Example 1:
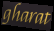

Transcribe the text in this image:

gharat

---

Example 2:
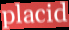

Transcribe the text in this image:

placid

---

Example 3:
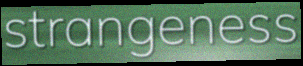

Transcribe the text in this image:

strangeness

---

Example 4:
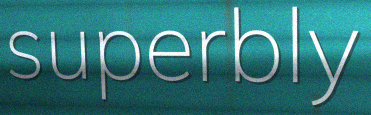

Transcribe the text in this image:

superbly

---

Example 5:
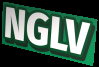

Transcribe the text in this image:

NGLV